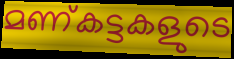
മണ്കട്ടകളുടെ